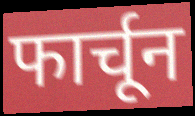
फार्चून